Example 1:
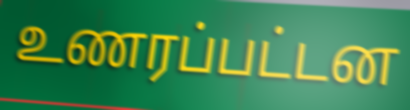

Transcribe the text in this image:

உணரப்பட்டன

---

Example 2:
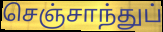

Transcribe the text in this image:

செஞ்சாந்துப்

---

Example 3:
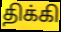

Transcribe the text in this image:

திக்கி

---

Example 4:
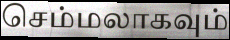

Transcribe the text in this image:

செம்மலாகவும்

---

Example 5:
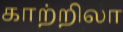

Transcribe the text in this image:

காற்றிலா